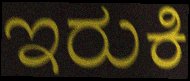
ಇರುಕಿ